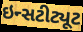
ઇન્સટીટ્યૂટ